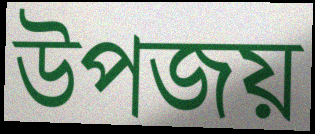
উপজয়